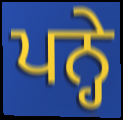
ਪਨ੍ਹੇ